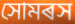
সোমৰস